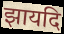
झायदि